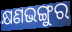
କ୍ଷଣଭଙ୍ଗୁର